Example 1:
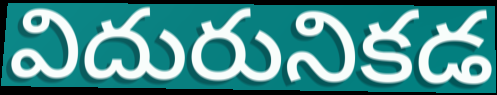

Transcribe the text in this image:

విదురునికడ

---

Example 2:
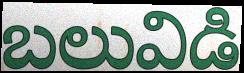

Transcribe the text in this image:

బలువిడి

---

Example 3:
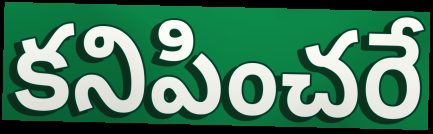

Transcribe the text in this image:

కనిపించరే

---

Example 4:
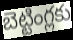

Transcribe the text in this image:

బెట్టింగ్లకు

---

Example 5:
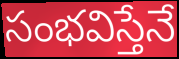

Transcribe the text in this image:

సంభవిస్తేనే